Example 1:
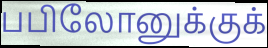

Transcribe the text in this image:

பபிலோனுக்குக்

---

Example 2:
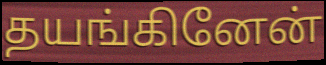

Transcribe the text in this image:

தயங்கினேன்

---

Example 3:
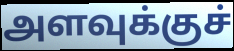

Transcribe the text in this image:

அளவுக்குச்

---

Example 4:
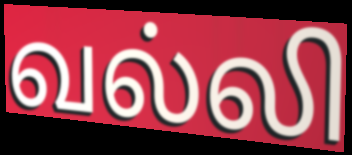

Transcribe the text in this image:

வல்லி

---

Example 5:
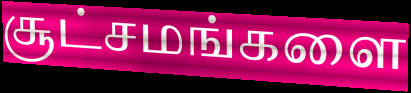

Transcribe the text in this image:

சூட்சமங்களை